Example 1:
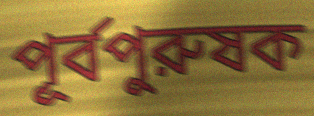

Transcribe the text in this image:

পূৰ্বপুৰুষক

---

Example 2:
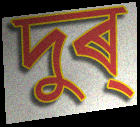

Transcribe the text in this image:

দুৰ্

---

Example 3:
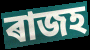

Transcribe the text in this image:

ৰাজহ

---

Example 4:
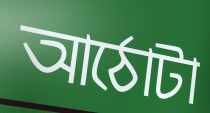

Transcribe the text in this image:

আঠোটা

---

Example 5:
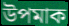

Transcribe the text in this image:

উপমাক